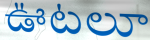
ఊటలూ